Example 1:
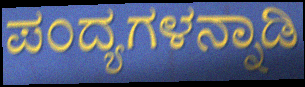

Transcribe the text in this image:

ಪಂದ್ಯಗಳನ್ನಾಡಿ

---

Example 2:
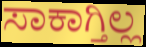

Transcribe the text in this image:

ಸಾಕಾಗ್ತಿಲ್ಲ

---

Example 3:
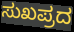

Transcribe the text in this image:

ಸುಖಪ್ರದ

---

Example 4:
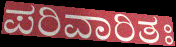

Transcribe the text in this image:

ಪರಿವಾರಿತಃ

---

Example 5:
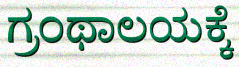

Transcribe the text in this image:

ಗ್ರಂಥಾಲಯಕ್ಕೆ